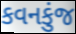
કવનકુંજ